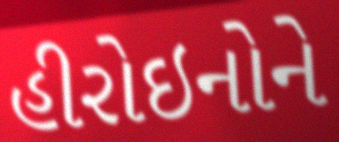
હીરોઇનોને